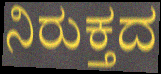
ನಿರುಕ್ತದ